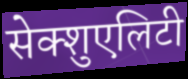
सेक्शुएलिटी